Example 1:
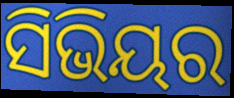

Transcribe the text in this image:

ସିଭିୟର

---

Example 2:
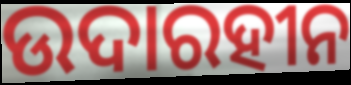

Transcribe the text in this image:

ଉଦାରହୀନ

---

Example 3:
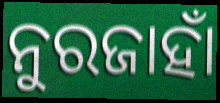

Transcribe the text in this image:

ନୁରଜାହାଁ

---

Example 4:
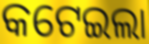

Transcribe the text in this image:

କଟେଇଲା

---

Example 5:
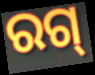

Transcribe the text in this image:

ରଗ୍